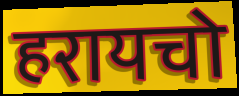
हरायचो